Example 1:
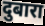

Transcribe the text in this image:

दुबारा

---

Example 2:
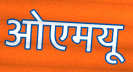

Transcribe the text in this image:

ओएमयू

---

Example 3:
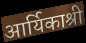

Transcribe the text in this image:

आर्यिकाश्री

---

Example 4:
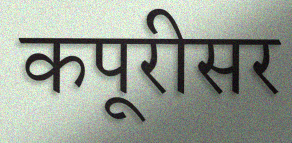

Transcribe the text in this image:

कपूरीसर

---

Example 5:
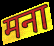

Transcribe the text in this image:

मना